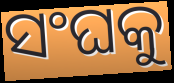
ସଂଘକୁ